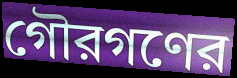
গৌরগণের